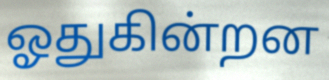
ஓதுகின்றன